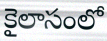
కైలాసంలో